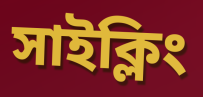
সাইক্লিং